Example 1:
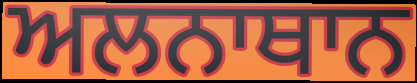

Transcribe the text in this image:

ਅਲਨਾਥਾਨ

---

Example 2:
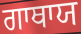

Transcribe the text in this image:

ਗਾਥਾਯ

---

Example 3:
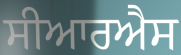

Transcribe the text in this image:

ਸੀਆਰਐਸ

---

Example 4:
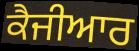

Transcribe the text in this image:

ਕੈਜੀਆਰ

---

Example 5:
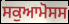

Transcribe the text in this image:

ਸਕੁਆਮੋਸਸ